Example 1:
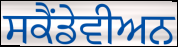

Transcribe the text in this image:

ਸਕੈਂਡੇਵੀਅਨ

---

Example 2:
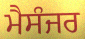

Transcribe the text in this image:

ਮੈਸੰਜਰ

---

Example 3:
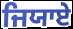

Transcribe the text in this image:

ਜਿਯਾਏ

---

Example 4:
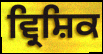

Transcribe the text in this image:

ਵ੍ਰਿਸ਼ਿਕ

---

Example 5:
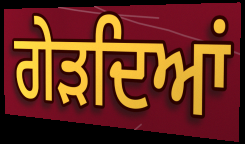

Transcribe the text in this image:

ਗੇੜਦਿਆਂ